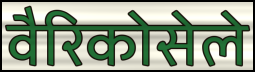
वैरिकोसेले